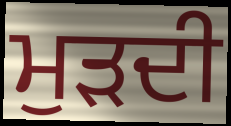
ਮੁੜਦੀ